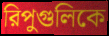
রিপুগুলিকে